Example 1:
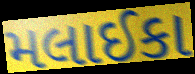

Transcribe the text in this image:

મલાઈકા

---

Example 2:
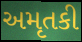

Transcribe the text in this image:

અમૃતકી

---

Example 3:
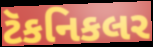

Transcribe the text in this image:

ટૅકનિકલર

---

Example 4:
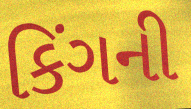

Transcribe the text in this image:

કિંગની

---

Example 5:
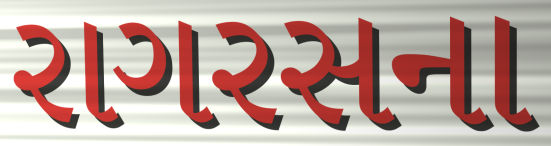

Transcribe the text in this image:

રાગરસના